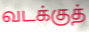
வடக்குத்